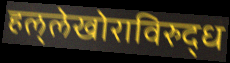
हल्लेखोराविरुद्ध